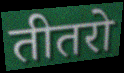
तीतरो